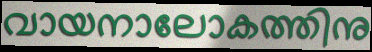
വായനാലോകത്തിനു